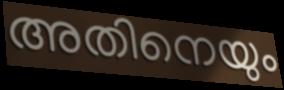
അതിനെയും